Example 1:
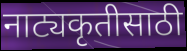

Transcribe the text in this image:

नाट्यकृतीसाठी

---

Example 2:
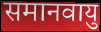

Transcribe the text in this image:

समानवायु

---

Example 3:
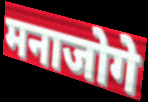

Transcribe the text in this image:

मनाजोगे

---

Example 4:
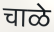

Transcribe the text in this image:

चाळे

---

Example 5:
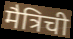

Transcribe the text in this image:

मैत्रिची